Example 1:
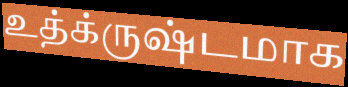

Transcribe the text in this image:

உத்க்ருஷ்டமாக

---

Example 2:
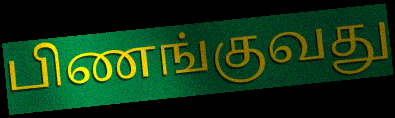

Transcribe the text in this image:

பிணங்குவது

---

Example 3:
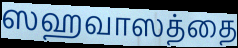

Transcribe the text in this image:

ஸஹவாஸத்தை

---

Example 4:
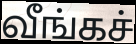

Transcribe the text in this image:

வீங்கச்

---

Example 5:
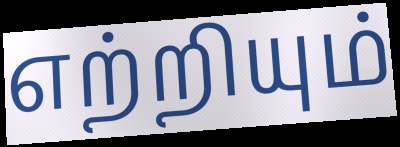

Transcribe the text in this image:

எற்றியும்